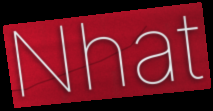
Nhat